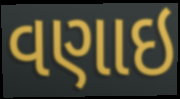
વણાઇ